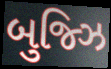
બુજ્ઝિ